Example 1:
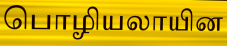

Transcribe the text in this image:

பொழியலாயின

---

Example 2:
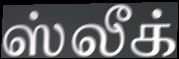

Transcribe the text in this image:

ஸ்லீக்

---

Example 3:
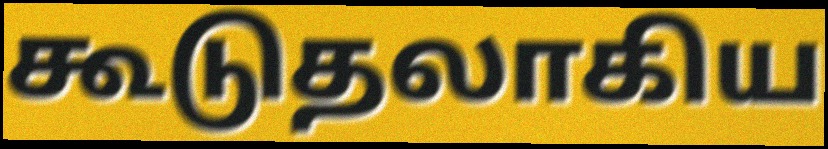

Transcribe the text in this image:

கூடுதலாகிய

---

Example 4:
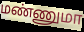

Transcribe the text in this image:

மண்ணுமா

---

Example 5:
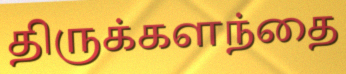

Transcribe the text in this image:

திருக்களந்தை